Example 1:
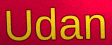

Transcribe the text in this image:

Udan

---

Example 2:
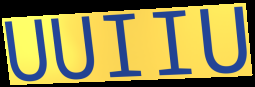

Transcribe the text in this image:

UUIIU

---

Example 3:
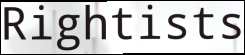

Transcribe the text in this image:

Rightists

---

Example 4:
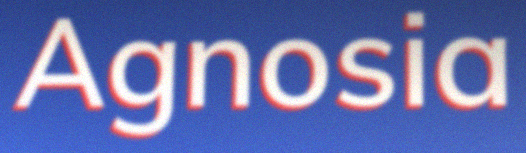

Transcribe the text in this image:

Agnosia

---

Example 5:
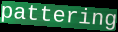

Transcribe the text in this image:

pattering